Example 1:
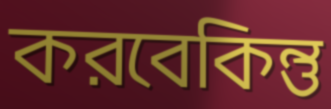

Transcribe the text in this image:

করবেকিন্তু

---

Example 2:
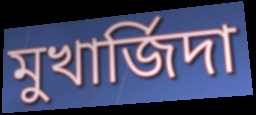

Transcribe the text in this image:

মুখার্জিদা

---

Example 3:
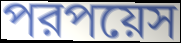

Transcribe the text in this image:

পরপয়েস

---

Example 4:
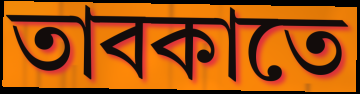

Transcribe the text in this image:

তাবকাতে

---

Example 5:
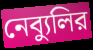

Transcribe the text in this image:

নেব্যুলির